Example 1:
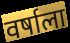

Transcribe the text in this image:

वर्षाला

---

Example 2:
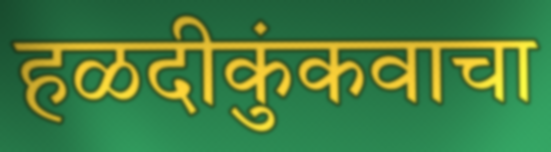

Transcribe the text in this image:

हळदीकुंकवाचा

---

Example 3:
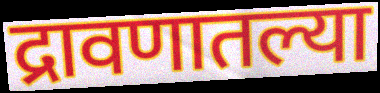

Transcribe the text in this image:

द्रावणातल्या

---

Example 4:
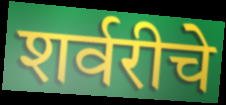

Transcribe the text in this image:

शर्वरीचे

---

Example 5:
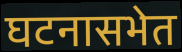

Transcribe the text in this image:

घटनासभेत